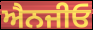
ਐਨਜੀਓ